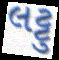
લટ્ટુ